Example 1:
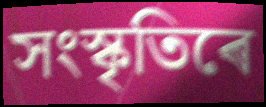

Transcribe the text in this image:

সংস্কৃতিৰে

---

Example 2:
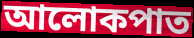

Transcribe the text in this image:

আলোকপাত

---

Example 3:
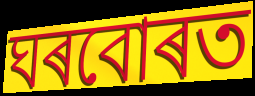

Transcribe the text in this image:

ঘৰবোৰত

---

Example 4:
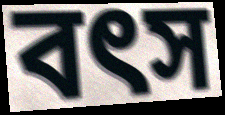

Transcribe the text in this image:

বৎস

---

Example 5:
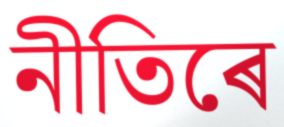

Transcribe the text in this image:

নীতিৰে